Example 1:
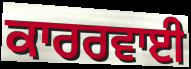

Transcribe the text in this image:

ਕਾਰਰਵਾਈ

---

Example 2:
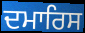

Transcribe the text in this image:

ਦਮਾਰਿਸ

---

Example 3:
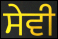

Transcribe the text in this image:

ਸੇਵੀ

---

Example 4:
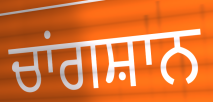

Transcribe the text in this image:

ਚਾਂਗਸ਼ਾਨ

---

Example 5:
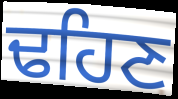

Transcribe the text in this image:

ਢਹਿਣ